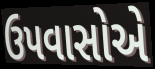
ઉપવાસોએ